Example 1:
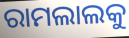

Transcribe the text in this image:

ରାମଲାଲକୁ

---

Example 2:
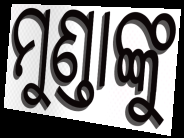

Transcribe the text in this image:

ମୁଣ୍ଡାଙ୍କୁ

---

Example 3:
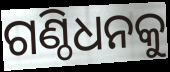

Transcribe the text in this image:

ଗଣ୍ଠିଧନକୁ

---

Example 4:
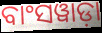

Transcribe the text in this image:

ବାଂସୱାଡ଼ା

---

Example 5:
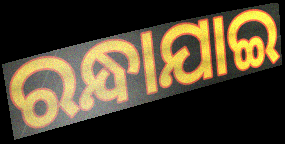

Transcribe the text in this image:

ରନ୍ଧାଯାଇ